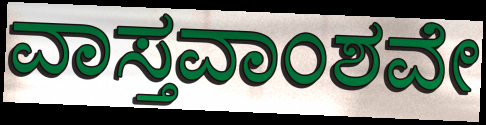
ವಾಸ್ತವಾಂಶವೇ